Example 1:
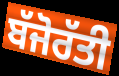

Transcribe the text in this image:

ਬੱਜੋਰੱਤੀ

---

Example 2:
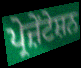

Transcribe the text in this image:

ਪ੍ਰੇਜ਼ੇਂਟੇਸ਼ਨ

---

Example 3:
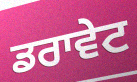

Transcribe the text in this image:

ਡਰਾਵੇਟ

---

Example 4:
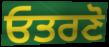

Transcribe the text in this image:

ਓਤਰਣੋ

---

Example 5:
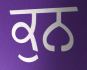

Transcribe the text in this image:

ਕੁਨ